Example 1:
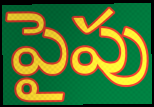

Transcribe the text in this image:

పైపు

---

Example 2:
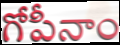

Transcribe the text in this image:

గోపీనాం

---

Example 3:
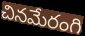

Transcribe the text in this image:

చినమేరంగి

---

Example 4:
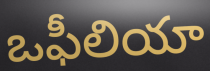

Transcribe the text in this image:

ఒఫీలియా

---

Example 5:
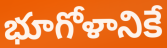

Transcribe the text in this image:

భూగోళానికే